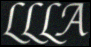
LLLA